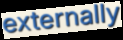
externally